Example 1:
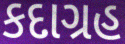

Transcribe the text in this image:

કદાગ્રહ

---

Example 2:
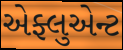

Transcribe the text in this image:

એફ્લુએન્ટ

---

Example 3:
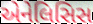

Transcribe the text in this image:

એનેલિસિસ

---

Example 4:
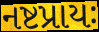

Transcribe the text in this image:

નષ્ટપ્રાયઃ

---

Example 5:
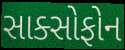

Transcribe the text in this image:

સાક્સોફોન